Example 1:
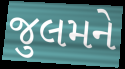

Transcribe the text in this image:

જુલમને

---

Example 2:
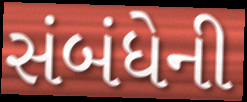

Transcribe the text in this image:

સંબંધેની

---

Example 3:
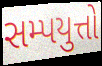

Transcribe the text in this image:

સમ્પયુત્તો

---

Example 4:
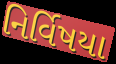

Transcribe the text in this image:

નિર્વિષયા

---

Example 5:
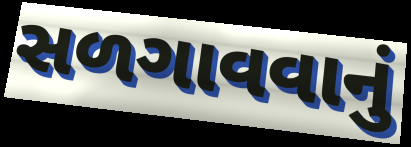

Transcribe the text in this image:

સળગાવવાનું